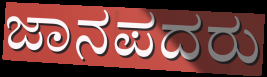
ಜಾನಪದರು